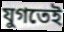
যুগতেই